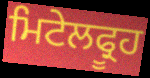
ਮਿਟੇਲਫ੍ਰੂਹ